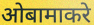
ओबामाकरे